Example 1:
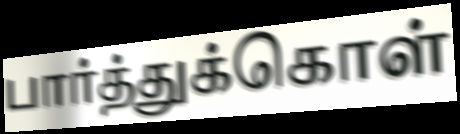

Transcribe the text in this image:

பார்த்துக்கொள்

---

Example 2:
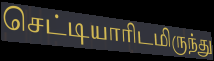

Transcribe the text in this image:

செட்டியாரிடமிருந்து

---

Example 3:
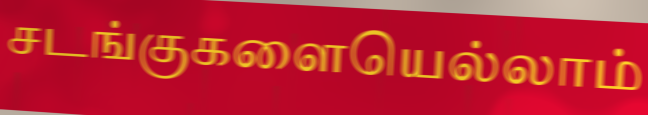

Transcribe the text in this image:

சடங்குகளையெல்லாம்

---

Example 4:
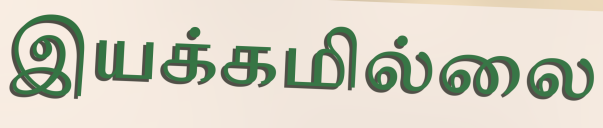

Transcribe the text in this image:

இயக்கமில்லை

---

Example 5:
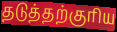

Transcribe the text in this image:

தடுத்தற்குரிய